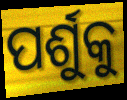
ପର୍ଶୁକୁ